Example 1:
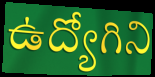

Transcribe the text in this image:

ఉద్యోగిని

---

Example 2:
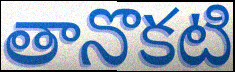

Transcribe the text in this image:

తానొకటి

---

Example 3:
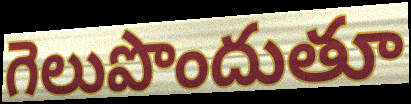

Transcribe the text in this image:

గెలుపొందుతూ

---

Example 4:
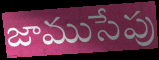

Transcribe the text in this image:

జాముసేపు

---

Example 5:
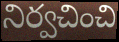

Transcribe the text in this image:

నిర్వచించి